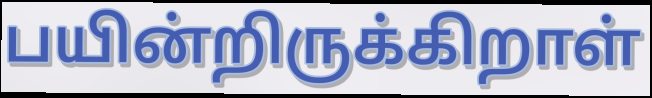
பயின்றிருக்கிறாள்